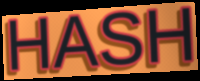
HASH